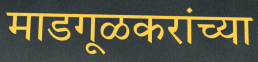
माडगूळकरांच्या